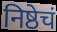
निष्ठेचं